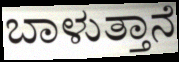
ಬಾಳುತ್ತಾನೆ